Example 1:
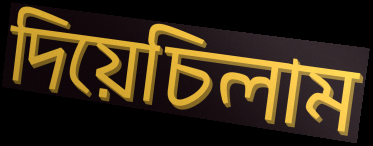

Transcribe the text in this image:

দিয়েচিলাম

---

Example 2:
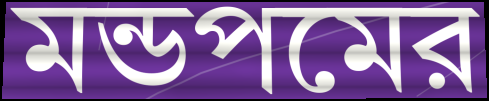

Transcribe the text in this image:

মন্ডপমের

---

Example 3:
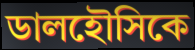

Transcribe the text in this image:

ডালহৌসিকে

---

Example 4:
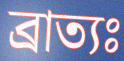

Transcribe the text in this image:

ব্রাত্যঃ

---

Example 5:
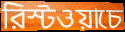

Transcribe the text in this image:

রিস্টওয়াচে